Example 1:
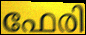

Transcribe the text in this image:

ഫേരി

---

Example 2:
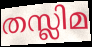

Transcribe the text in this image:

തസ്ലിമ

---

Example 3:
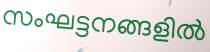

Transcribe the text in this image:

സംഘട്ടനങ്ങളിൽ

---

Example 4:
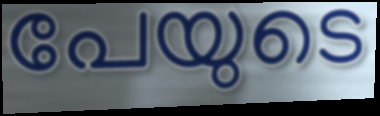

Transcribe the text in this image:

പേയുടെ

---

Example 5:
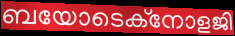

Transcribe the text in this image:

ബയോടെക്നോളജി